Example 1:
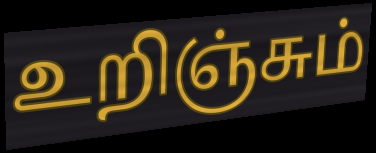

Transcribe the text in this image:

உறிஞ்சும்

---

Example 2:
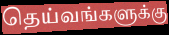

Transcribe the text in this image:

தெய்வங்களுக்கு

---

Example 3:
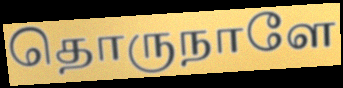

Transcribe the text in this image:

தொருநாளே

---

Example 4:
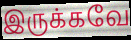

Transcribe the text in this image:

இருக்கவே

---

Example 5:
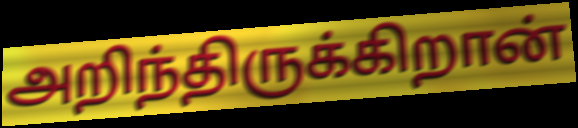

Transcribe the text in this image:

அறிந்திருக்கிறான்